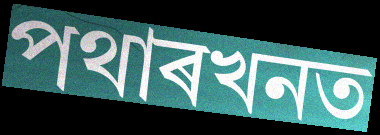
পথাৰখনত